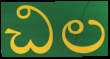
చిల